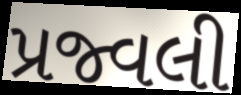
પ્રજ્વલી